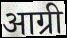
आग्री